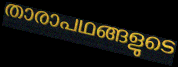
താരാപഥങ്ങളുടെ